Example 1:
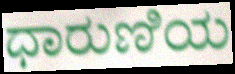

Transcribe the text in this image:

ಧಾರುಣಿಯ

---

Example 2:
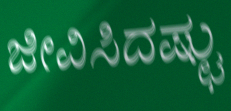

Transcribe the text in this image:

ಜೀವಿಸಿದಷ್ಟು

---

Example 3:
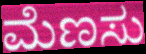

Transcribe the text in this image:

ಮೆಣಸು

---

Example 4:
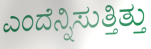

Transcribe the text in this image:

ಎಂದೆನ್ನಿಸುತ್ತಿತ್ತು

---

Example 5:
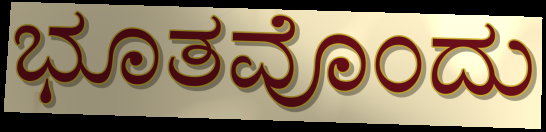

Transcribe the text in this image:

ಭೂತವೊಂದು